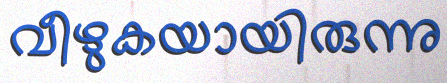
വീഴുകയായിരുന്നു